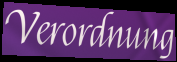
Verordnung